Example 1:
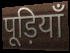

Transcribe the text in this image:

पूड़ियाँ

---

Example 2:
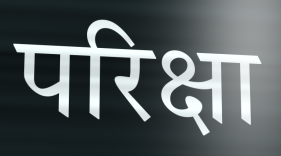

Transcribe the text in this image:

परिक्षा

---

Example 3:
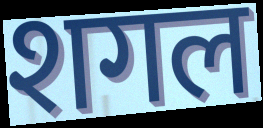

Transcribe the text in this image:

शगल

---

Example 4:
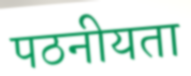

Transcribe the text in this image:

पठनीयता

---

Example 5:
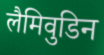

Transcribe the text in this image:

लैमिवुडिन